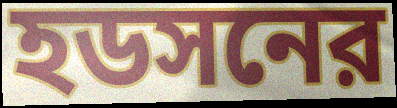
হডসনের